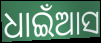
ଧାଇଁଆସ